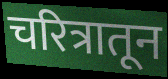
चरित्रातून